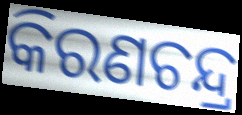
କିରଣଚନ୍ଦ୍ର